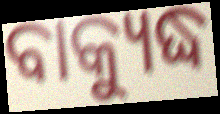
ବାକ୍ଯୁଦ୍ଧ